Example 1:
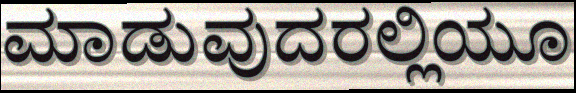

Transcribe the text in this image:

ಮಾಡುವುದರಲ್ಲಿಯೂ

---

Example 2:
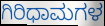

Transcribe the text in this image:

ಗಿರಿಧಾಮಗಳ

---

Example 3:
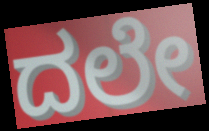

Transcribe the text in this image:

ದಲೇ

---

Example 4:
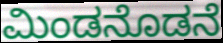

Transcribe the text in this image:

ಮಿಂಡನೊಡನೆ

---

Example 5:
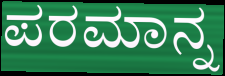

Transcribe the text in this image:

ಪರಮಾನ್ನ